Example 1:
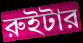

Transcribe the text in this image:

রুইটার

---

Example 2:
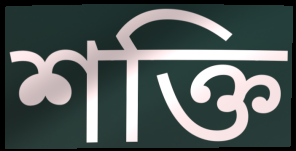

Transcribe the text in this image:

শক্তি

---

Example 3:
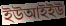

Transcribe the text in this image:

ইউআইইউ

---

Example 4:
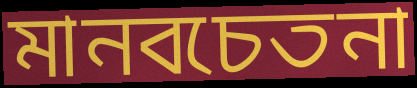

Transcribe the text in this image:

মানবচেতনা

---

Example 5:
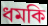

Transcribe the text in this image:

ধমকি